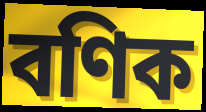
বণিক